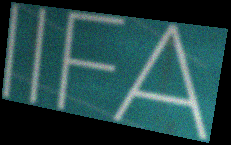
IIFA